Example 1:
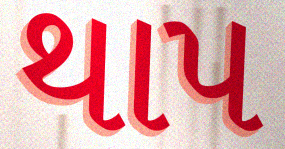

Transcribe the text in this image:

થાપ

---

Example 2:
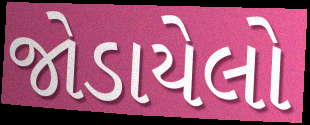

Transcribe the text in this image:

જોડાયેલો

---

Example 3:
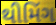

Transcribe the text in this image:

થીમિંગ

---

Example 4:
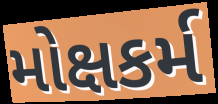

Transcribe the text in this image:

મોક્ષકર્મ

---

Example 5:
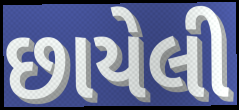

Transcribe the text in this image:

છાયેલી